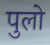
पुलो